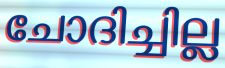
ചോദിച്ചില്ല